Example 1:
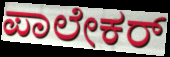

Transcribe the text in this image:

ಪಾಲೇಕರ್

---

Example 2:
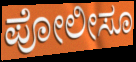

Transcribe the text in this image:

ಪೋಲೀಸೂ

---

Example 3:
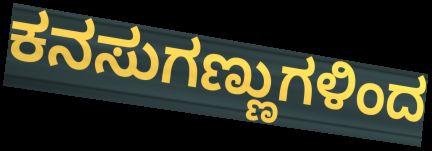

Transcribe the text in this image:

ಕನಸುಗಣ್ಣುಗಳಿಂದ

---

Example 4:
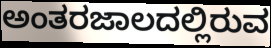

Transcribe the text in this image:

ಅಂತರಜಾಲದಲ್ಲಿರುವ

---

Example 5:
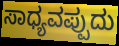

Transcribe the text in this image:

ಸಾಧ್ಯವಪ್ಪುದು